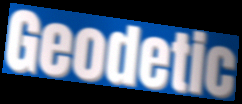
Geodetic